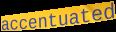
accentuated